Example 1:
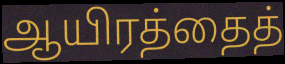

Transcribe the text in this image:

ஆயிரத்தைத்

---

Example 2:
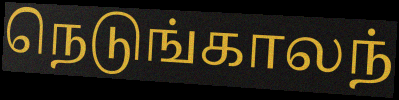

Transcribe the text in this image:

நெடுங்காலந்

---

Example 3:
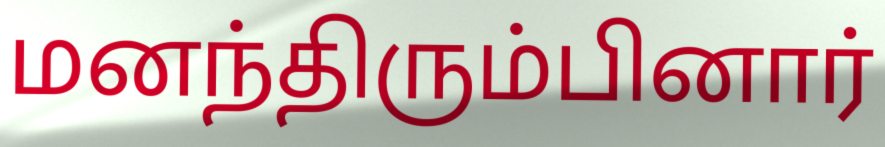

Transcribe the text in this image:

மனந்திரும்பினார்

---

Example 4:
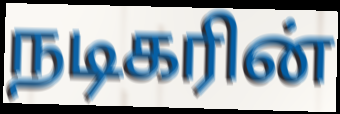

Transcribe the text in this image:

நடிகரின்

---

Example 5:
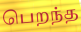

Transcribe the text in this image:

பெறந்த